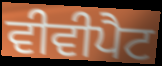
ਵੀਵੀਪੈਟ